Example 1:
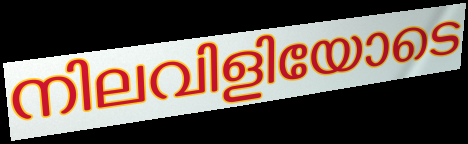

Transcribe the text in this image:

നിലവിളിയോടെ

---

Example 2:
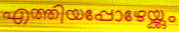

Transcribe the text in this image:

എത്തിയപ്പോഴേയ്ക്കും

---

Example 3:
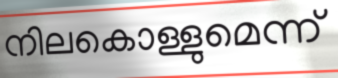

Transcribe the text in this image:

നിലകൊള്ളുമെന്ന്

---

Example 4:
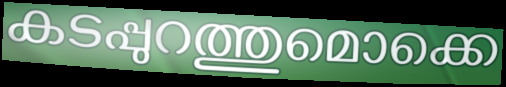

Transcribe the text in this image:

കടപ്പുറത്തുമൊക്കെ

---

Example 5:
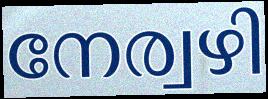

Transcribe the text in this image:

നേര്വഴി